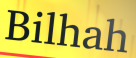
Bilhah